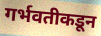
गर्भवतीकडून